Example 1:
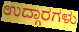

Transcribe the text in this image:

ಉದ್ಗಾರಗಳು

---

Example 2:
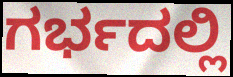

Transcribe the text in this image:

ಗರ್ಭದಲ್ಲಿ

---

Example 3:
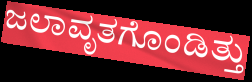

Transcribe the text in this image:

ಜಲಾವೃತಗೊಂಡಿತ್ತು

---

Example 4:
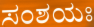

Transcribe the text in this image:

ಸಂಶಯಃ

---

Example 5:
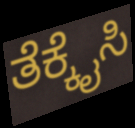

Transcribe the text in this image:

ತೆಕ್ಕೈಸಿ